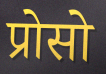
प्रोसो